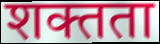
शक्तता